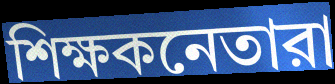
শিক্ষকনেতারা